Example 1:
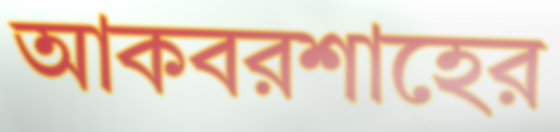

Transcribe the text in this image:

আকবরশাহের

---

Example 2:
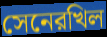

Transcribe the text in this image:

সেনেরখিল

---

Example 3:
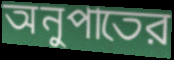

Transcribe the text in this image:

অনুপাতের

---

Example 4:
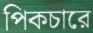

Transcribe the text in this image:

পিকচারে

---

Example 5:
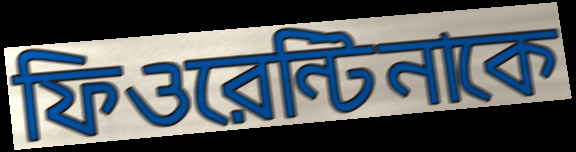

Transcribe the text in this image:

ফিওরেন্টিনাকে